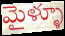
మైళ్ళూ